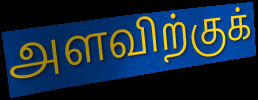
அளவிற்குக்